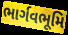
ભાર્ગવભૂમિ